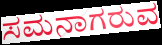
ಸಮನಾಗರುವ